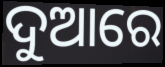
ଦୁଆରେ